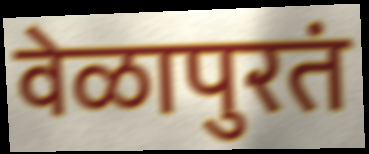
वेळापुरतं